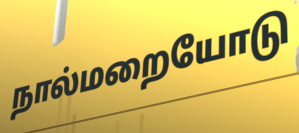
நால்மறையோடு